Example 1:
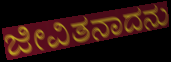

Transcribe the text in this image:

ಜೀವಿತನಾದನು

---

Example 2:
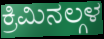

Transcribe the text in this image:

ಕ್ರಿಮಿನಲ್ಗಳ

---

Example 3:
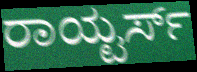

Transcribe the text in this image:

ರಾಯ್ಟರ್ಸ್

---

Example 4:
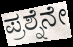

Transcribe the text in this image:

ಪ್ರಶ್ನೆನೇ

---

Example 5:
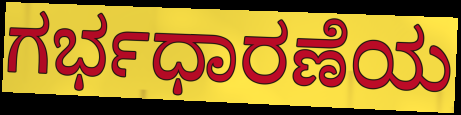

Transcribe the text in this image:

ಗರ್ಭಧಾರಣೆಯ